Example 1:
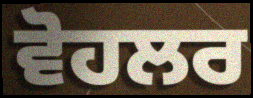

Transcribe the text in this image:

ਵੋਹਲਰ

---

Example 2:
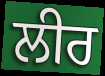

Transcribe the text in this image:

ਲੀਰ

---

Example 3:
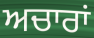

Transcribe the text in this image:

ਅਚਾਰਾਂ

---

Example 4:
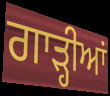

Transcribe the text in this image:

ਗਾੜ੍ਹੀਆਂ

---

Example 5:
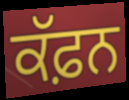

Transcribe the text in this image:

ਕੱਫ਼ਨ